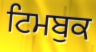
ਟਿਮਬੁਕ